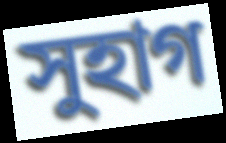
সুহাগ